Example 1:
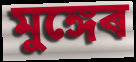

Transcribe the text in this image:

মুঙ্গেৰ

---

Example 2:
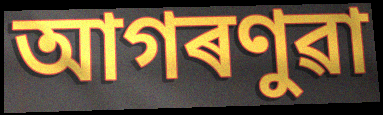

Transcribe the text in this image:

আগৰণুৱা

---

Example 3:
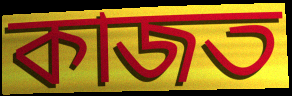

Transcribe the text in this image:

কাজত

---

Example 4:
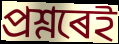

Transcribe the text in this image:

প্ৰশ্নৰেই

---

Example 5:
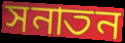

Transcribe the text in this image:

সনাতন